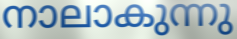
നാലാകുന്നു